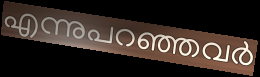
എന്നുപറഞ്ഞവർ